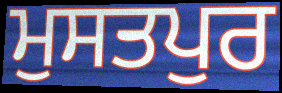
ਮੁਸਤਪੁਰ